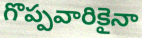
గొప్పవారికైనా